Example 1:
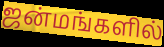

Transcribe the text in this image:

ஜன்மங்களில்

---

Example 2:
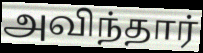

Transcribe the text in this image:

அவிந்தார்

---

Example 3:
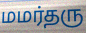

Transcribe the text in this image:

மமர்தரு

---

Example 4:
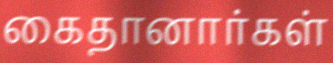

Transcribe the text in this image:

கைதானார்கள்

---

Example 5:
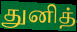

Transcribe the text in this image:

துனித்